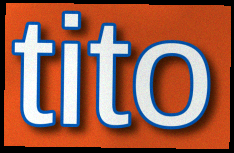
tito